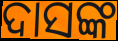
ଦାସଙ୍କ